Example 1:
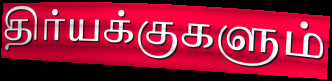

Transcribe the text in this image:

திர்யக்குகளும்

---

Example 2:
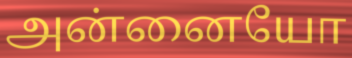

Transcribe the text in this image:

அன்னையோ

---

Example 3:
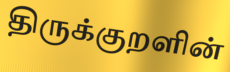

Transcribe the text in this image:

திருக்குறளின்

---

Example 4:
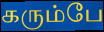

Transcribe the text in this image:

கரும்பே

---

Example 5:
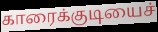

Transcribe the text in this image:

காரைக்குடியைச்